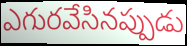
ఎగురవేసినప్పుడు